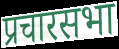
प्रचारसभा